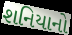
શનિયાનો